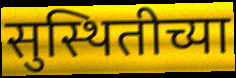
सुस्थितीच्या